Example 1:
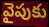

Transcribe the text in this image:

వైపుకు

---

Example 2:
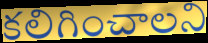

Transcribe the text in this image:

కలిగించాలని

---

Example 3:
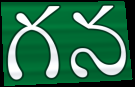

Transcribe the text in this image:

గన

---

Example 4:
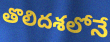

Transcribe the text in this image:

తొలిదశలోనే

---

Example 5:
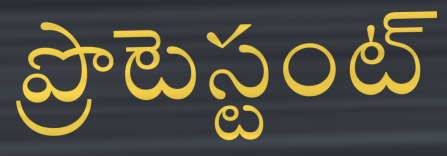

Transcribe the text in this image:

ప్రొటెస్టంట్